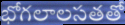
భోగలాలసతతో